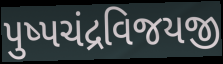
પુષ્પચંદ્રવિજયજી